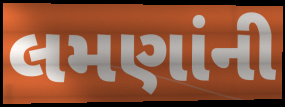
લમણાંની